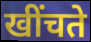
खींचते